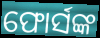
ଫୋର୍ସଙ୍କ